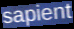
sapient